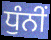
ਧੁੰਨੀਂ